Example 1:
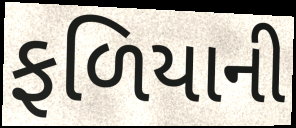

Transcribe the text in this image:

ફળિયાની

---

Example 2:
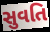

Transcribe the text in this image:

સુવતિ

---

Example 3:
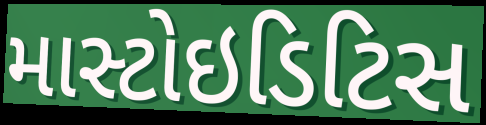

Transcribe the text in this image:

માસ્ટોઇડિટિસ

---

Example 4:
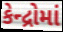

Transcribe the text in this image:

કેન્દ્રોમાં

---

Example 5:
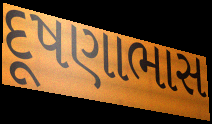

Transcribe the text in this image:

દૂષણાભાસ